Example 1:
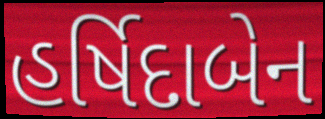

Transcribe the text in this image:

હર્ષિદાબેન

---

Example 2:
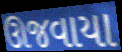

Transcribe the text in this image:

ઊજવાયા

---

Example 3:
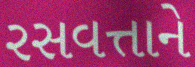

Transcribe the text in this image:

રસવત્તાને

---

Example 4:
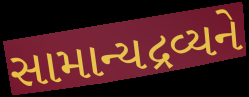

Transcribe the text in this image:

સામાન્યદ્રવ્યને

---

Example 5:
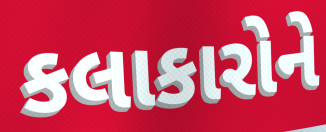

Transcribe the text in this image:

કલાકારોને